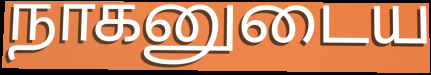
நாகனுடைய